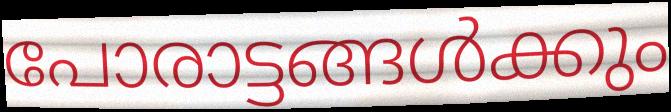
പോരാട്ടങ്ങൾക്കും